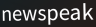
newspeak